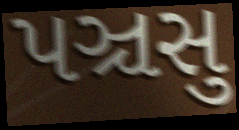
પઞ્ચસુ